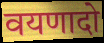
वयणादो